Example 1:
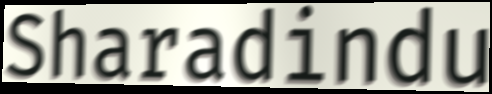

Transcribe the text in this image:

Sharadindu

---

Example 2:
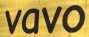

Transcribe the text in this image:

vavo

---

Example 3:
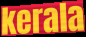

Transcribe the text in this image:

kerala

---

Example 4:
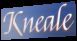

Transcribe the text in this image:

Kneale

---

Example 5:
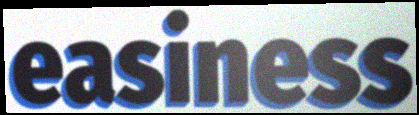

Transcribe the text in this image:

easiness